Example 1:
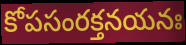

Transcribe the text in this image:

కోపసంరక్తనయనః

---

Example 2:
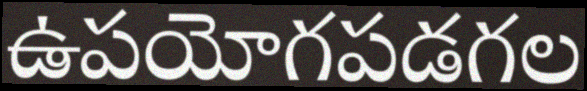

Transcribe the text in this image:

ఉపయోగపడగల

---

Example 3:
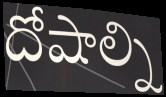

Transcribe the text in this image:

దోషాల్ని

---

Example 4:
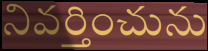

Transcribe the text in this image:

నివర్తించును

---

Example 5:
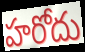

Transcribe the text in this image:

హరోదు